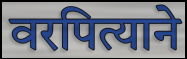
वरपित्याने